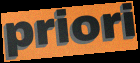
priori